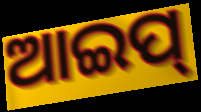
ଆଇପ୍